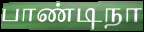
பாண்டிநா